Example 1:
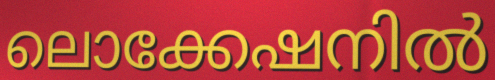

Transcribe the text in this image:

ലൊക്കേഷനിൽ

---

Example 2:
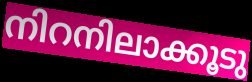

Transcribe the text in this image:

നിറനിലാക്കൂടു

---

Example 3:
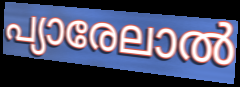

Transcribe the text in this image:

പ്യാരേലാൽ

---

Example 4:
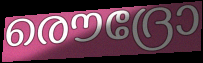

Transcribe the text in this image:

രൌദ്രോ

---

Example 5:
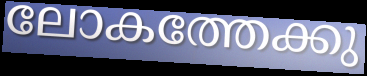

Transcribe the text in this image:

ലോകത്തേക്കു